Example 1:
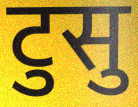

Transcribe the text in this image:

टुसु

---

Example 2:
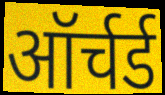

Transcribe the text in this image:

ऑर्चर्ड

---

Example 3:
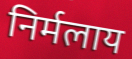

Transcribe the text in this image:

निर्मलाय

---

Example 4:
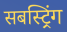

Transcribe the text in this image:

सबस्ट्रिंग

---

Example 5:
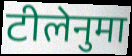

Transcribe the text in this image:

टीलेनुमा